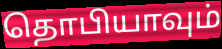
தொபியாவும்